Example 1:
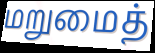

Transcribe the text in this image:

மறுமைத்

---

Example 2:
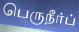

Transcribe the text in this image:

பெருநீர்ப்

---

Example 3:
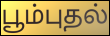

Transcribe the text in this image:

பூம்புதல்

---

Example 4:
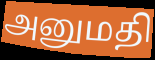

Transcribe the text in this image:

அனுமதி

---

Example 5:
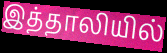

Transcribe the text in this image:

இத்தாலியில்